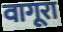
वागूरा